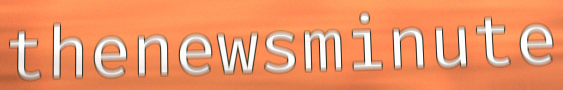
thenewsminute